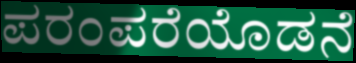
ಪರಂಪರೆಯೊಡನೆ